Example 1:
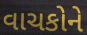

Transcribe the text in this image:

વાચકોને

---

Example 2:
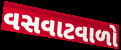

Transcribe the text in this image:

વસવાટવાળો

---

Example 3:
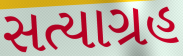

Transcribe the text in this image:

સત્યાગ્રહ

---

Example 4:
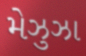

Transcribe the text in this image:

મેઝુઝા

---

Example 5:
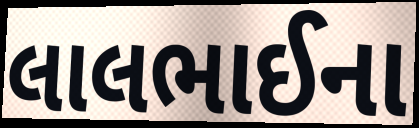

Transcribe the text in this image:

લાલભાઈના